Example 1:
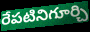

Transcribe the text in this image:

రేపటినిగూర్చి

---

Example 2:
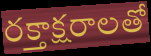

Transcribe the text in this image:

రక్తాక్షరాలతో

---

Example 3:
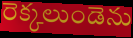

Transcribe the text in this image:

రెక్కలుండెను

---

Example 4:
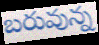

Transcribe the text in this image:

బరువున్న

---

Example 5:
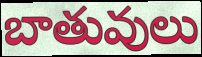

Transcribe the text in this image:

బాతువులు